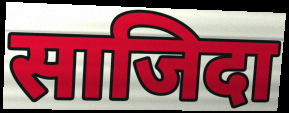
साजिदा